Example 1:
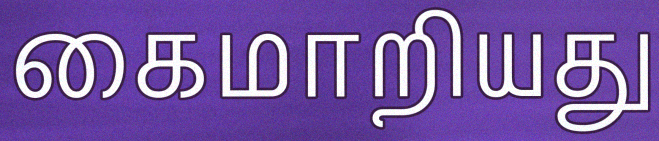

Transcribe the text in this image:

கைமாறியது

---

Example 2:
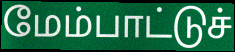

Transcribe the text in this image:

மேம்பாட்டுச்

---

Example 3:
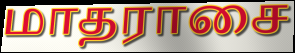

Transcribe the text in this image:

மாதராசை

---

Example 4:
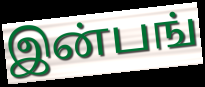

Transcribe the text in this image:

இன்பங்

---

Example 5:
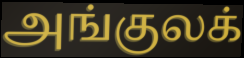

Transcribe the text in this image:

அங்குலக்